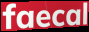
faecal